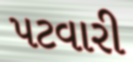
પટવારી